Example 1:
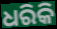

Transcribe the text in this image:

ଧରିକି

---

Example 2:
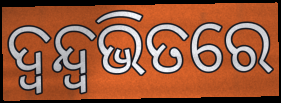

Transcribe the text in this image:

ଦ୍ୱନ୍ଦ୍ୱଭିତରେ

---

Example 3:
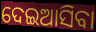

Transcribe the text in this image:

ଦେଇଆସିବା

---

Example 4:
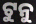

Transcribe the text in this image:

ଟୁନୁ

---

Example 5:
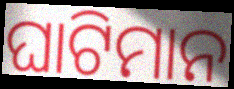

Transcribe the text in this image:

ଘାଟିମାନ